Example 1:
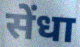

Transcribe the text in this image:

सेंधा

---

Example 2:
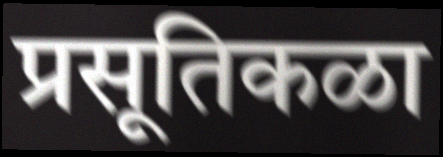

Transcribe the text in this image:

प्रसूतिकळा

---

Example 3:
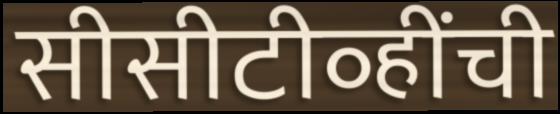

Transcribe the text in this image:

सीसीटीव्हींची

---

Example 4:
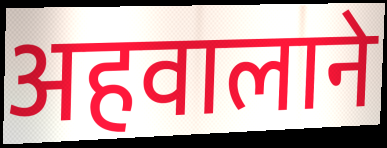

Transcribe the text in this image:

अहवालाने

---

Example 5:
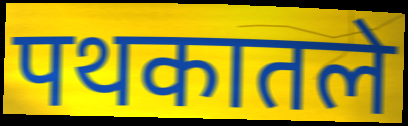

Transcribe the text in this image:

पथकातले